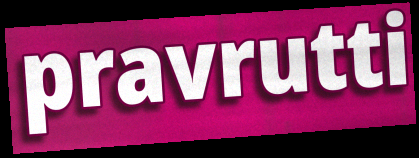
pravrutti